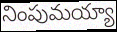
నింపుమయ్యా